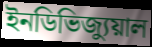
ইনডিভিজ্যুয়াল